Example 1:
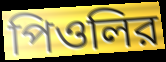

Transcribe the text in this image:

পিওলির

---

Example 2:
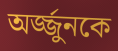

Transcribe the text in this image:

অর্জ্জুনকে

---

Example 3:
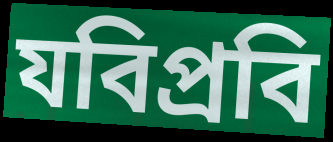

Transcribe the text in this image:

যবিপ্রবি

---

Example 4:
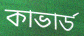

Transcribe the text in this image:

কাভার্ড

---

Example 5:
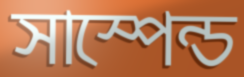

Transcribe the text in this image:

সাস্পেন্ড